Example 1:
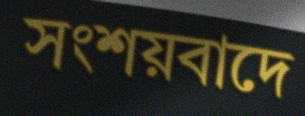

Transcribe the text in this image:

সংশয়বাদে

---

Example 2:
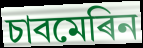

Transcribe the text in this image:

চাবমেৰিন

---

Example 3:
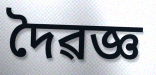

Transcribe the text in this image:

দৈৱজ্ঞ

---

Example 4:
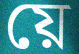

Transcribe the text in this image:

য়ে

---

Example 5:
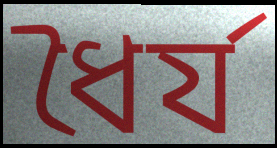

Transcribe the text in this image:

ধৈৰ্য